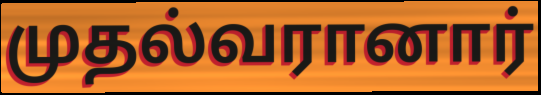
முதல்வரானார்